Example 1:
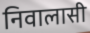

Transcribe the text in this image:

निवालासी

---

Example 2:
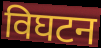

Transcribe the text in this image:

विघटन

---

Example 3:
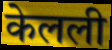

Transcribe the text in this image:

केलली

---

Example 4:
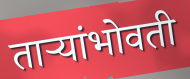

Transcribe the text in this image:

ताऱ्यांभोवती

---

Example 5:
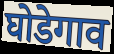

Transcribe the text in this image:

घोडेगाव